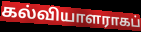
கல்வியாளராகப்